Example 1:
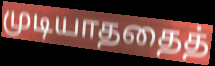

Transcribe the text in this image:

முடியாததைத்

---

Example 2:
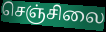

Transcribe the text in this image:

செஞ்சிலை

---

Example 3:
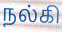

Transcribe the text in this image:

நல்கி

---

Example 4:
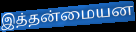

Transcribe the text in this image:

இத்தன்மையன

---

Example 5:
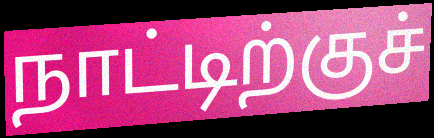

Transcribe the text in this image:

நாட்டிற்குச்